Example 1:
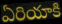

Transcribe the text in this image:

ఏరియాకి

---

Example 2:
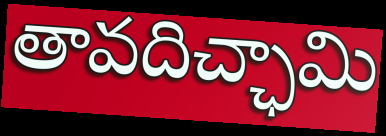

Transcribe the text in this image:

తావదిచ్ఛామి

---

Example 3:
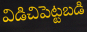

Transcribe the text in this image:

విడిచిపెట్టబడి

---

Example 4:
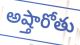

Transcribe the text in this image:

అష్తారోతు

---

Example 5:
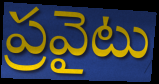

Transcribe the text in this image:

ప్రవైటు